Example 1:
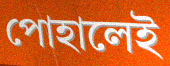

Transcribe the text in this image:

পোহালেই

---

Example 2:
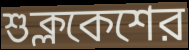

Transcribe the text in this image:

শুক্লকেশের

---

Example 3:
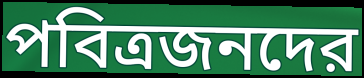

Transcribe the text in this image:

পবিত্রজনদের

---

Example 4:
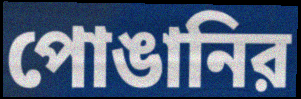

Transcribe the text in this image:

পোঙানির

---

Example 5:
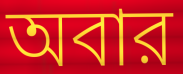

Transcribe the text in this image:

অবার